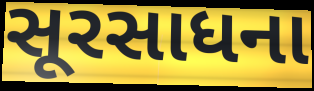
સૂરસાધના